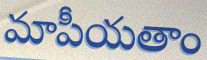
మాపీయతాం